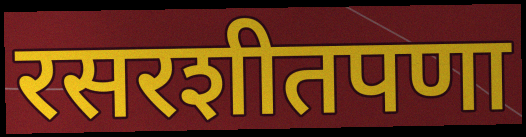
रसरशीतपणा